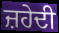
ਜ਼ਹੇਦੀ